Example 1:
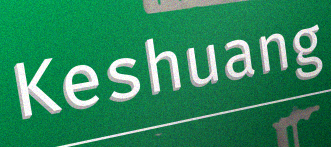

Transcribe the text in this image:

Keshuang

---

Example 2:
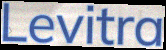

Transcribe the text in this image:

Levitra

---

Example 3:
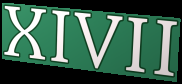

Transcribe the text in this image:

XIVII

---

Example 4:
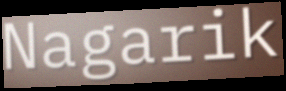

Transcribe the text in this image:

Nagarik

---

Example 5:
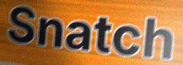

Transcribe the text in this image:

Snatch